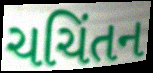
ચચિંતન